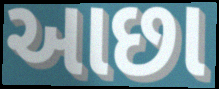
આછા